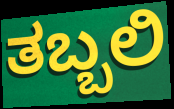
ತಬ್ಬಲಿ